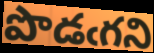
పొడఁగని